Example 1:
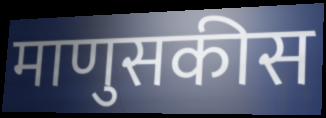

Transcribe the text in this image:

माणुसकीस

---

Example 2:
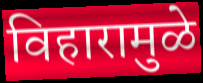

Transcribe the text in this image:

विहारामुळे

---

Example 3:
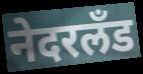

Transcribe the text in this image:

नेदरलँड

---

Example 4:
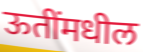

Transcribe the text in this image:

ऊतींमधील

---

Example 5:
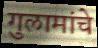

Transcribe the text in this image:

गुलामांचे